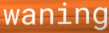
waning